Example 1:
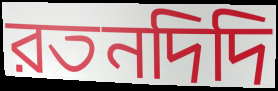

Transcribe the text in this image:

রতনদিদি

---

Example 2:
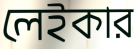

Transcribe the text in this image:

লেইকার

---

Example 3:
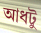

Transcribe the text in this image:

আধটু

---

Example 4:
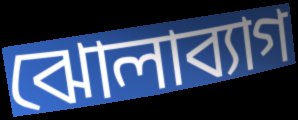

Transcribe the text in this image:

ঝোলাব্যাগ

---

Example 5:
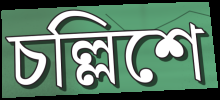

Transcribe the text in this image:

চল্লিশে